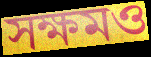
সক্ষমও